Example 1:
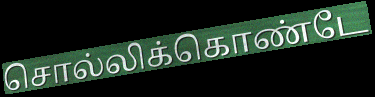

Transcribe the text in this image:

சொல்லிக்கொண்டே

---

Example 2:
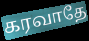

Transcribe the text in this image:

கரவாதே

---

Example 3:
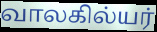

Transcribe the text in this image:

வாலகில்யர்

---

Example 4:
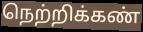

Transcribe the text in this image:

நெற்றிக்கண்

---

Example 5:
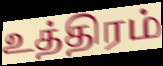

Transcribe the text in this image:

உத்திரம்